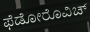
ಫೆಡೋರೊವಿಚ್